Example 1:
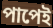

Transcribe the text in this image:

পাপেই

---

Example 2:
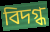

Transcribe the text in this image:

বিদগ্ধ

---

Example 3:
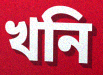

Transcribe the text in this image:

খনি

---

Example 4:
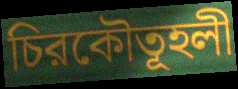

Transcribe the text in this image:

চিরকৌতূহলী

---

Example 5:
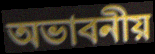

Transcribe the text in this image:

অভাবনীয়